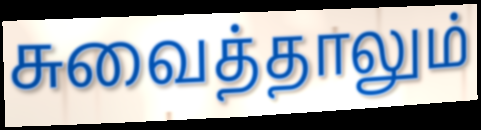
சுவைத்தாலும்